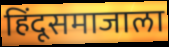
हिंदूसमाजाला